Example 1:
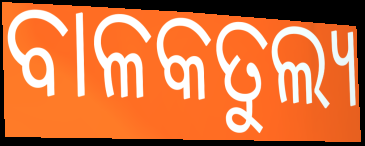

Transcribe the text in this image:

ବାଳକତୁଲ୍ୟ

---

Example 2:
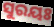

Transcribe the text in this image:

ସୁରୟଃ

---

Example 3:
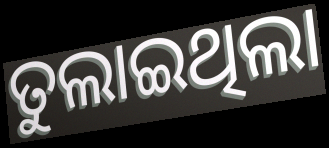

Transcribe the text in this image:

ତୁଲାଇଥିଲା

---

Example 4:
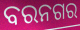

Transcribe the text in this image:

ବରନଗର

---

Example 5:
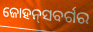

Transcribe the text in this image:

ଜୋହନ୍‌ସବର୍ଗର